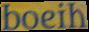
boeih